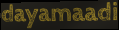
dayamaadi